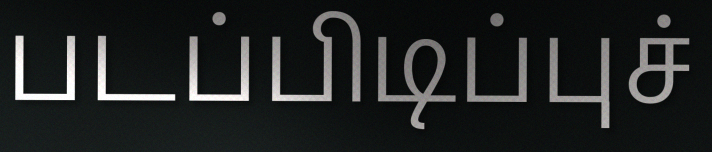
படப்பிடிப்புச்